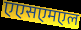
एएसएमएल